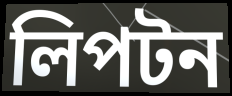
লিপটন